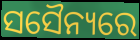
ସସୈନ୍ୟରେ